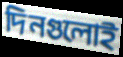
দিনগুলোই